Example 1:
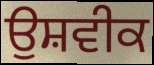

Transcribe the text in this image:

ਉਸ਼ਵੀਕ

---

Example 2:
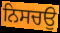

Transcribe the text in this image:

ਨਿਸਚਉ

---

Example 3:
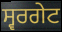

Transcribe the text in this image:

ਸ੍ਵਰਗੇਟ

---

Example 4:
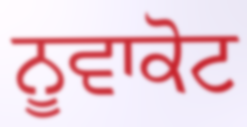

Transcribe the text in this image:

ਨੂਵਾਕੋਟ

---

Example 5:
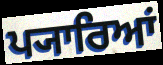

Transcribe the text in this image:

ਪ੍ਯਾਰਿਆਂ